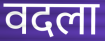
वदला